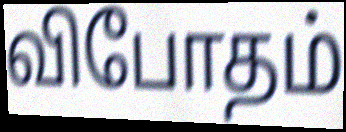
விபோதம்